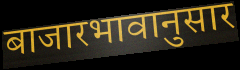
बाजारभावानुसार